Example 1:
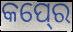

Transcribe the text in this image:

କପ୍‍ରେ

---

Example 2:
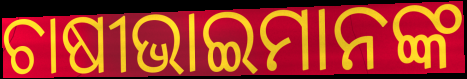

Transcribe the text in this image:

ଚାଷୀଭାଇମାନଙ୍କ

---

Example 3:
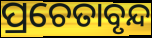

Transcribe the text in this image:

ପ୍ରଚେତାବୃନ୍ଦ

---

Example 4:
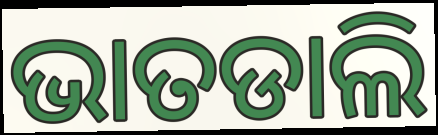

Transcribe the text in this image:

ଭାତଡାଲି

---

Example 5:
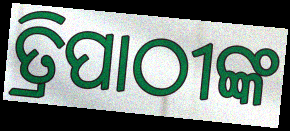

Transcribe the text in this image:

ତ୍ରିପାଠୀଙ୍କ